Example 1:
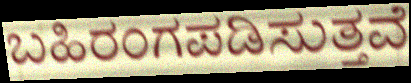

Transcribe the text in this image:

ಬಹಿರಂಗಪಡಿಸುತ್ತವೆ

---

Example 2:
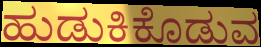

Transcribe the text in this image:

ಹುಡುಕಿಕೊಡುವ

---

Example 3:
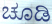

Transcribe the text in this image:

ಚೂಡಿ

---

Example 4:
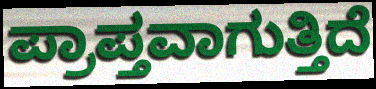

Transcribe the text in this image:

ಪ್ರಾಪ್ತವಾಗುತ್ತಿದೆ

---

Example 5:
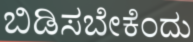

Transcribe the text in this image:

ಬಿಡಿಸಬೇಕೆಂದು